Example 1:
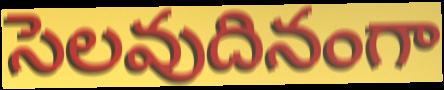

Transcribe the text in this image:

సెలవుదినంగా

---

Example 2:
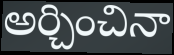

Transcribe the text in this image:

అర్చించినా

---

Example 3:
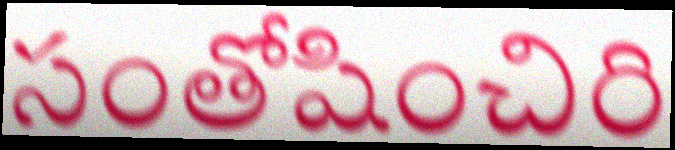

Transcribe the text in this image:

సంతోషించిరి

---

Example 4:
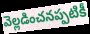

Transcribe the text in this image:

వెల్లడించనప్పటికీ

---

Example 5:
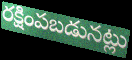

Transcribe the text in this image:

రక్షింపబడునట్లు